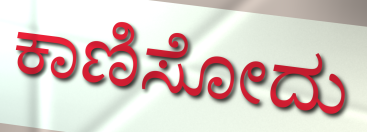
ಕಾಣಿಸೋದು